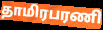
தாமிரபரணி